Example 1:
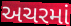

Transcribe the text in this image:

અચરમાં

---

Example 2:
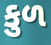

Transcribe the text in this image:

કુળ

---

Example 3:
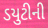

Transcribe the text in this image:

ડયુટીની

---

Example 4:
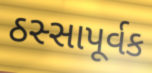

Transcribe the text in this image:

ઠસ્સાપૂર્વક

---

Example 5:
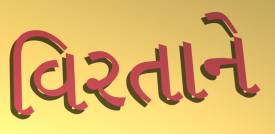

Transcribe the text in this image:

વિરતાને